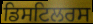
ਡਿਸਟਿਲਰਸ